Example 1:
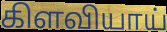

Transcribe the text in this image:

கிளவியாய்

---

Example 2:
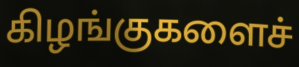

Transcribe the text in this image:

கிழங்குகளைச்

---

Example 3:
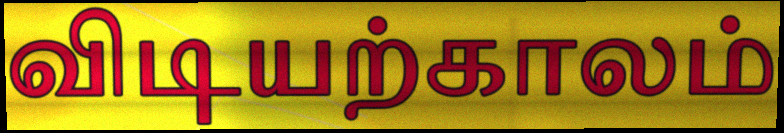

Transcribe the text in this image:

விடியற்காலம்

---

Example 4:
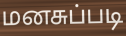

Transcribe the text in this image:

மனசுப்படி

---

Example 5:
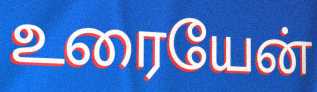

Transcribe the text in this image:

உரையேன்